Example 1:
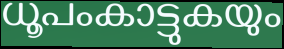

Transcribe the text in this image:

ധൂപംകാട്ടുകയും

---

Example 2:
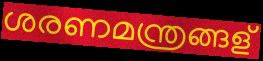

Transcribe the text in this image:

ശരണമന്ത്രങ്ങള്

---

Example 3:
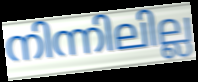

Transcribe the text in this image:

നിന്നിലില്ല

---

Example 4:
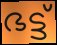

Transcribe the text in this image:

ഭട്ട്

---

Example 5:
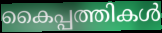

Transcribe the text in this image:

കൈപ്പത്തികൾ